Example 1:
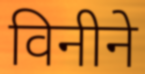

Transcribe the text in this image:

विनीने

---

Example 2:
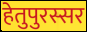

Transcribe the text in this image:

हेतुपुरस्सर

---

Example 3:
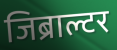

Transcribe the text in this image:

जिब्राल्टर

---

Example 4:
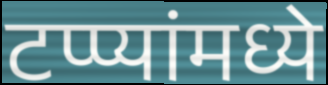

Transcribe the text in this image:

टप्प्यांमध्ये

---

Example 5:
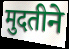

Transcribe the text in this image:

मुदतीने